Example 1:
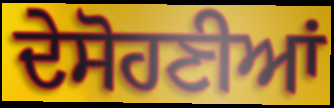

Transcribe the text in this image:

ਦੇਸੋਹਣੀਆਂ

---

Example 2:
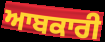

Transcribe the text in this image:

ਆਬਕਾਰੀ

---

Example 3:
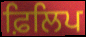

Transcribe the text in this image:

ਫ਼ਿਲਿਪ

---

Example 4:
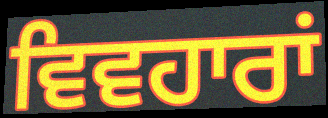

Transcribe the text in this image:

ਵਿਵਹਾਰਾਂ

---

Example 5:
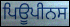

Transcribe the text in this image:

ਪਿਊਪੀਨਸ